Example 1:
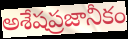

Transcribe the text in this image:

అశేషప్రజానీకం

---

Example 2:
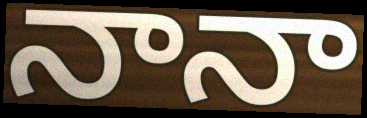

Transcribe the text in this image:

నానా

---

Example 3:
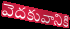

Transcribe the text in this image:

వెదకువానికి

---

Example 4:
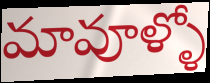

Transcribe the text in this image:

మావూళ్ళో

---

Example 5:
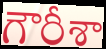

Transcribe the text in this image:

గౌరీశా